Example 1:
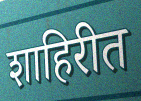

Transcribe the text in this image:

शाहिरीत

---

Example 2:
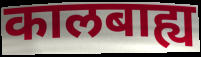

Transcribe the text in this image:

कालबाह्य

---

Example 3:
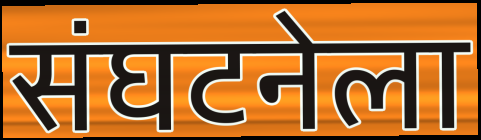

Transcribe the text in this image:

संघटनेला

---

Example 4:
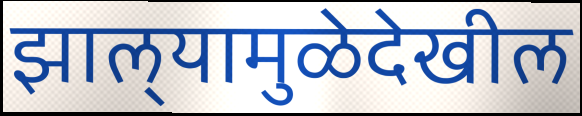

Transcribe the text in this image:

झाल्यामुळेदेखील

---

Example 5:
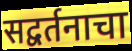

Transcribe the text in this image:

सद्वर्तनाचा